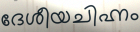
ദേശീയചിഹ്നം